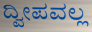
ದ್ವೀಪವಲ್ಲ